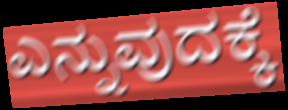
ಎನ್ನುವುದಕ್ಕೆ